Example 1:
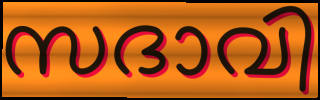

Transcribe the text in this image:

സദാവി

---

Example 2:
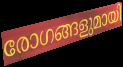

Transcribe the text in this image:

രോഗങ്ങളുമായി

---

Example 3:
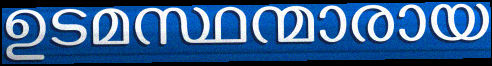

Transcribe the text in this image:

ഉടമസ്ഥന്മാരായ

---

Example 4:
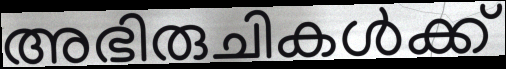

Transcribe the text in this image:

അഭിരുചികൾക്ക്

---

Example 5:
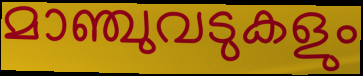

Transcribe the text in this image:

മാഞ്ചുവടുകളും